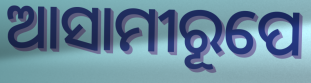
ଆସାମୀରୂପେ